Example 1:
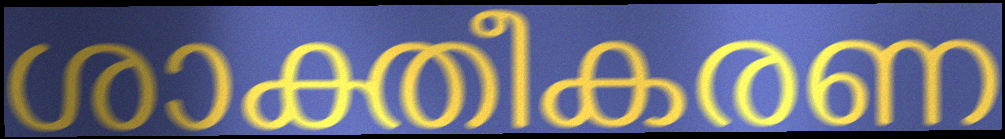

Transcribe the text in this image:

ശാക്തീകരണ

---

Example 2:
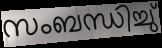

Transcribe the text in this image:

സംബന്ധിച്ചു്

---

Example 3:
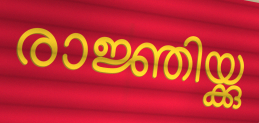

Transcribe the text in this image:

രാജ്ഞിയ്ക്കു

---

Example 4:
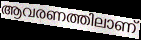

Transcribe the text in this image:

ആവരണത്തിലാണ്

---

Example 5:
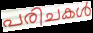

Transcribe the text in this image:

പരിചകൾ